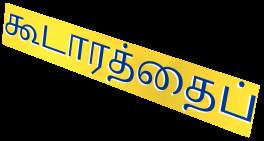
கூடாரத்தைப்